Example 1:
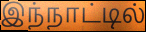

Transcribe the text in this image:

இந்நாட்டில்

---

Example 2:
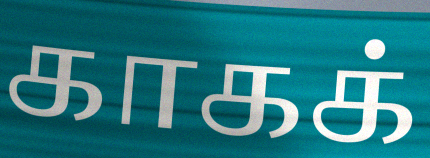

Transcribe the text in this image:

காகக்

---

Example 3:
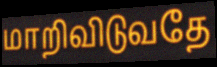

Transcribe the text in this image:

மாறிவிடுவதே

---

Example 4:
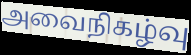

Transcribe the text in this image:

அவைநிகழ்வு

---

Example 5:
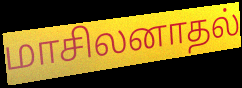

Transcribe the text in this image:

மாசிலனாதல்